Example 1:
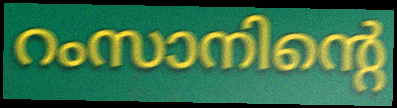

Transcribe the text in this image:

റംസാനിന്റെ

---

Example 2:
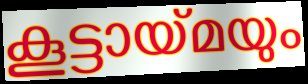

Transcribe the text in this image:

കൂട്ടായ്മയും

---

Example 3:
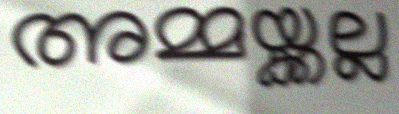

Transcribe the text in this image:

അമ്മയ്ക്കല്ല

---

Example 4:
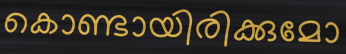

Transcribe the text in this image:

കൊണ്ടായിരിക്കുമോ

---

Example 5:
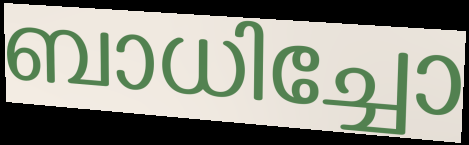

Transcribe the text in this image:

ബാധിച്ചോ